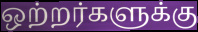
ஒற்றர்களுக்கு